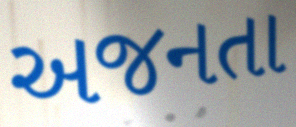
અજનતા